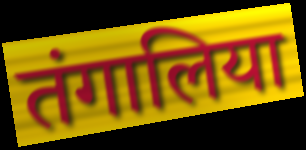
तंगालिया